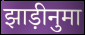
झाड़ीनुमा